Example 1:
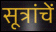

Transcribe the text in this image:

सूत्रांचें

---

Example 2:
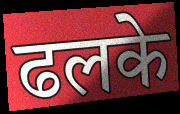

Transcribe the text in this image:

ढलके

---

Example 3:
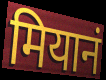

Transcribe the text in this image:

मियानं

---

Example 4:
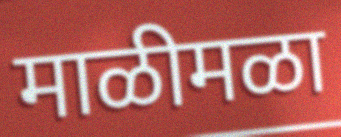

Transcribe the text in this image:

माळीमळा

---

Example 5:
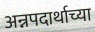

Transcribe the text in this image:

अन्नपदार्थाच्या